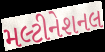
મલ્ટીનેશનલ